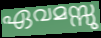
ഏവമസ്സു